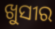
ଖୁସୀର